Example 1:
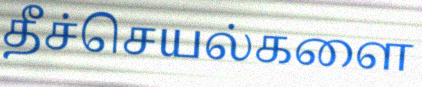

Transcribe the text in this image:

தீச்செயல்களை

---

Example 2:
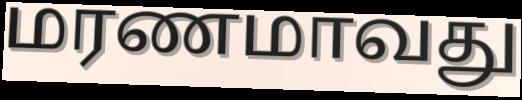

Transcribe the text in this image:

மரணமாவது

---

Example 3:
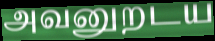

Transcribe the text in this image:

அவனுறடய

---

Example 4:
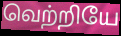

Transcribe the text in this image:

வெற்றியே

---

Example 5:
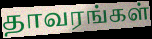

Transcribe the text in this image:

தாவரங்கள்